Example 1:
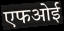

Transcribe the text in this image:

एफओई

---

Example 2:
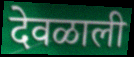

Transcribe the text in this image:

देवळाली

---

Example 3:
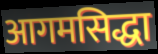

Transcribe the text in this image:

आगमसिद्धा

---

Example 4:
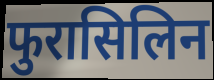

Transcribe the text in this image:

फुरासिलिन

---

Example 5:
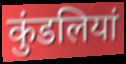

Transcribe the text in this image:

कुंडलियां